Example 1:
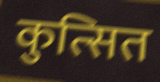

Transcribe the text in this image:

कुत्सित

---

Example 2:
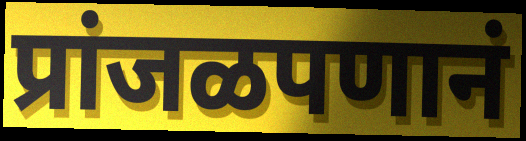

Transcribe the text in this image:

प्रांजळपणानं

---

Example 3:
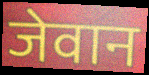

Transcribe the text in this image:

जेवान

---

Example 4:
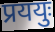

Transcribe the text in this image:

प्रययुः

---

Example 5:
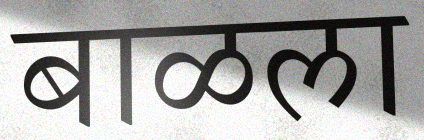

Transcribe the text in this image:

बाळला